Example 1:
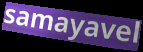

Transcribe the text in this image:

samayavel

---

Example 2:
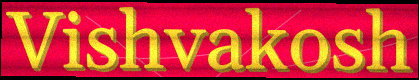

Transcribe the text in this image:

Vishvakosh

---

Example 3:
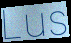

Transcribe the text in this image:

Lus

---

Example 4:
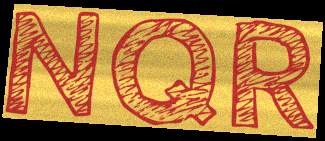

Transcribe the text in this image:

NQR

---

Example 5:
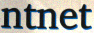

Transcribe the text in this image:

ntnet